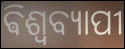
ଵିଶ୍ୱବ୍ୟାପୀ